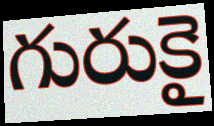
గురుకై